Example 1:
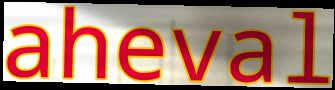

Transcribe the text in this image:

aheval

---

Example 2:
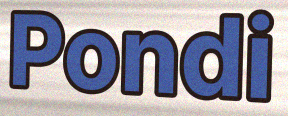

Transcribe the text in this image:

Pondi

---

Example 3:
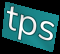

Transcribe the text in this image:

tps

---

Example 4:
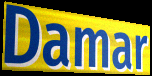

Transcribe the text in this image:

Damar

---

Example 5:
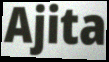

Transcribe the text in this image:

Ajita